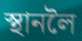
স্থানলৈ